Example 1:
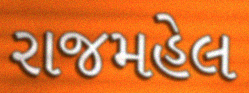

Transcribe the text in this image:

રાજમહેલ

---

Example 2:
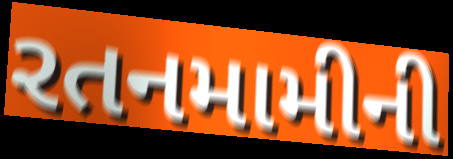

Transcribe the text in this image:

રતનમામીની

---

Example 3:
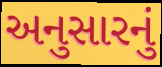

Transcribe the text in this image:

અનુસારનું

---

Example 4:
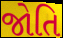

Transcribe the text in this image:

જોતિ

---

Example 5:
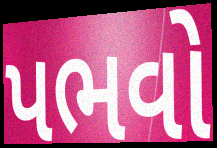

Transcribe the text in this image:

પભવો